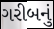
ગરીબનું